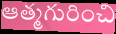
ఆత్మగురించి